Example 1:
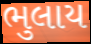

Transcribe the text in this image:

ભુલાય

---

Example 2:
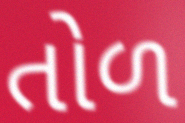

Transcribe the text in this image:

તોળ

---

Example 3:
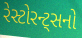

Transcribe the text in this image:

રેસ્ટોરન્ટ્સનો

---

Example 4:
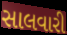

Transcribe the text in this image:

સાલવારી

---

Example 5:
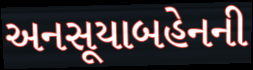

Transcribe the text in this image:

અનસૂયાબહેનની